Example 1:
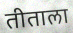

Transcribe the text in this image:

तीताला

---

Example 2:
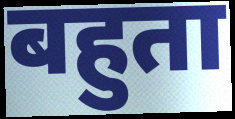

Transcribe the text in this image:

बहुता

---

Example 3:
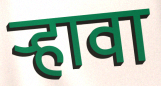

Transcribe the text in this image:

ऱ्हावा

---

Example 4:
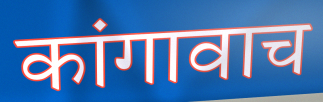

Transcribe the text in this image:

कांगावाच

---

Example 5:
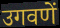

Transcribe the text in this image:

उगवणें